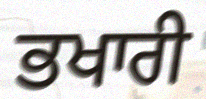
ਭਖਾਰੀ